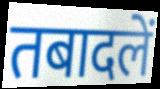
तबादलें